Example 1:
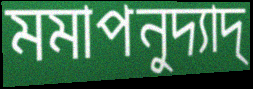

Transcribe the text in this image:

মমাপনুদ্যাদ্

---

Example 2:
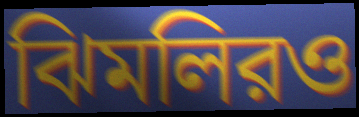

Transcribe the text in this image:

ঝিমলিরও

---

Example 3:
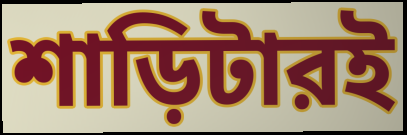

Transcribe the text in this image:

শাড়িটারই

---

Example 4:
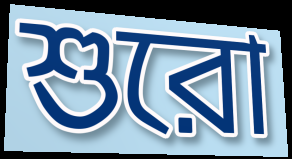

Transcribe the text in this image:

শুরো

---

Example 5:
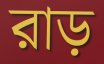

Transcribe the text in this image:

রাড়